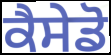
ਕੈਸੇਡੋ